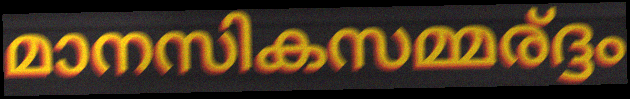
മാനസികസമ്മര്ദ്ദം